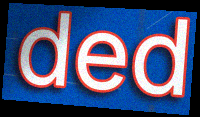
ded